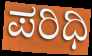
ಪರಿಧಿ